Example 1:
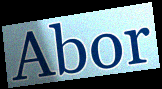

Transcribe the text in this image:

Abor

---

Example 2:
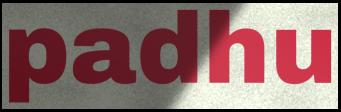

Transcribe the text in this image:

padhu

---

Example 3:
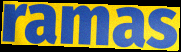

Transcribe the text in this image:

ramas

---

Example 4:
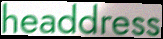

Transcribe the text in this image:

headdress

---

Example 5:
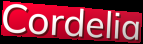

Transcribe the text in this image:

Cordelia